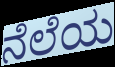
ನೆಲೆಯ